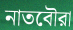
নাতবৌরা